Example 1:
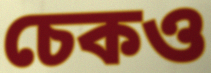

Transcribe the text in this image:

চেকও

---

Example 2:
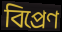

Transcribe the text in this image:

বিপ্রেণ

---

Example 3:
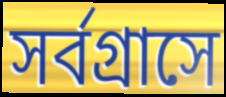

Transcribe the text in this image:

সর্বগ্রাসে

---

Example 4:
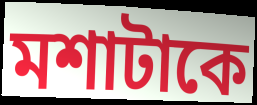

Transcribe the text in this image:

মশাটাকে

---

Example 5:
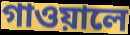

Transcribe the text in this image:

গাওয়ালে